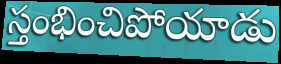
స్తంభించిపోయాడు